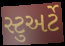
સ્ટુઅર્ટે